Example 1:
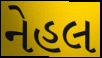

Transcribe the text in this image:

નેહલ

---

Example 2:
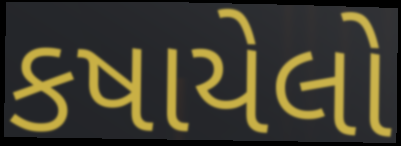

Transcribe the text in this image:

કષાયેલો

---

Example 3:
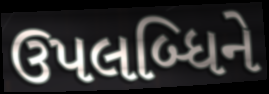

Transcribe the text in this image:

ઉપલબ્ધિને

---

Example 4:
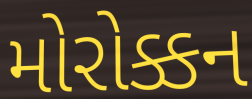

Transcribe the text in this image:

મોરોક્કન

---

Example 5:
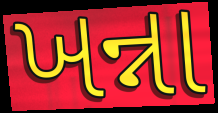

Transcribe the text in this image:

ખન્ના